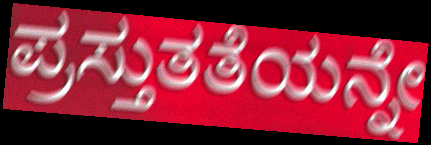
ಪ್ರಸ್ತುತತೆಯನ್ನೇ